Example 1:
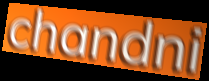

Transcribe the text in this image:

chandni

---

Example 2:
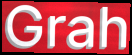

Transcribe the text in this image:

Grah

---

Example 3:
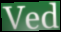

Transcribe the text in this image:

Ved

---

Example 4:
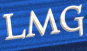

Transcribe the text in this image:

LMG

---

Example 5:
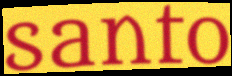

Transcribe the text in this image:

santo